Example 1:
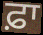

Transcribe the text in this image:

ਫ਼ਾ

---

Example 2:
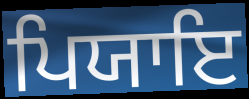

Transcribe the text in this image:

ਪਿਯਾਇ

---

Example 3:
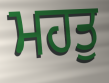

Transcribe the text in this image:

ਮਹਤੁ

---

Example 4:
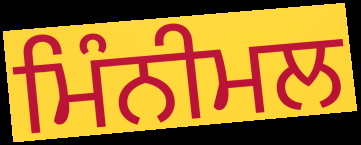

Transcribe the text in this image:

ਮਿੰਨੀਮਲ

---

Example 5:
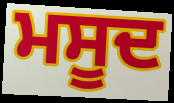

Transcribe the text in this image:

ਮਸੂਦ